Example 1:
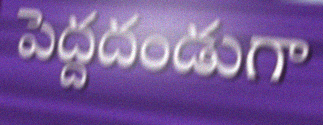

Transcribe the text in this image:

పెద్దదండుగా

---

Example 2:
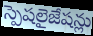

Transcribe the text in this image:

స్పెషలైజేషన్లు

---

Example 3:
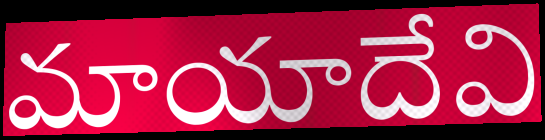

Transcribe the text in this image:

మాయాదేవి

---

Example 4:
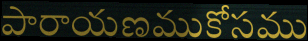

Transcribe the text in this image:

పారాయణముకోసము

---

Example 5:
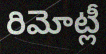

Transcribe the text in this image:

రిమోట్లీ